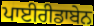
ਪਾਈਰੀਡਾਬੇਨ